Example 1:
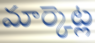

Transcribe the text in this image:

మార్కెట్ల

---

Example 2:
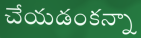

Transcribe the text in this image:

చేయడంకన్నా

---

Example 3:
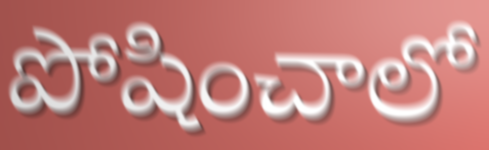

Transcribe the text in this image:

పోషించాలో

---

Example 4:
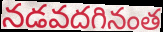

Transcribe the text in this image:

నడవదగినంత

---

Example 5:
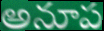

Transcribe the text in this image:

అనూప